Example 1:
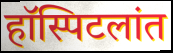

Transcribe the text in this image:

हॉस्पिटलांत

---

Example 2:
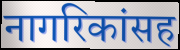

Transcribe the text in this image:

नागरिकांसह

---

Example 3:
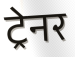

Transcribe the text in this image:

ट्रेनर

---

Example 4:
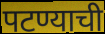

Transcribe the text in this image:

पटण्याची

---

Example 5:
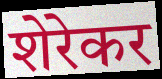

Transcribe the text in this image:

शेरेकर